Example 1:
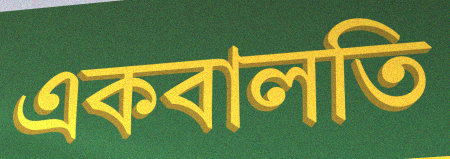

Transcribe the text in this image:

একবালতি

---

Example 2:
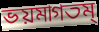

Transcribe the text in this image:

ভয়মাগতম্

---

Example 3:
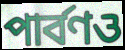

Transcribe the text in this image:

পার্বণও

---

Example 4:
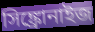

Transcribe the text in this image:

সিঙ্ক্রোনাইজ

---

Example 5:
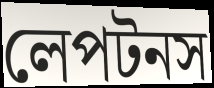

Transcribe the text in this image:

লেপটনস